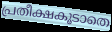
പ്രതീക്ഷകൂടാതെ